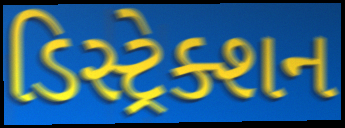
ડિસ્ટ્રેક્શન